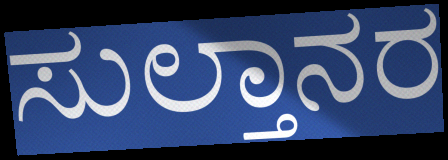
ಸುಲ್ತಾನರ